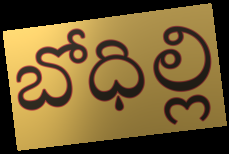
బోధిల్లి